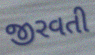
જીરવતી